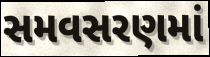
સમવસરણમાં